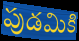
పుడమికి